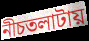
নীচতলাটায়